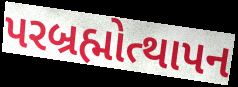
પરબ્રહ્મોત્થાપન